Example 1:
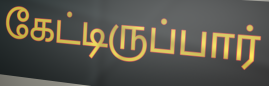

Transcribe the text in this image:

கேட்டிருப்பார்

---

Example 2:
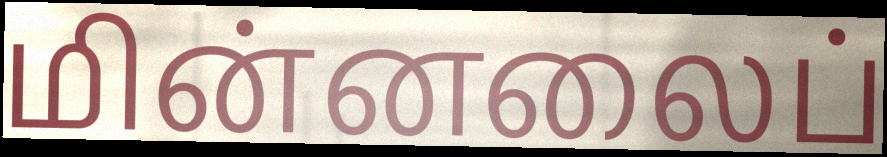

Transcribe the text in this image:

மின்னலைப்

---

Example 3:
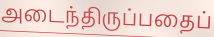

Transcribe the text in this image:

அடைந்திருப்பதைப்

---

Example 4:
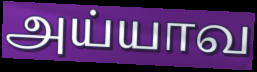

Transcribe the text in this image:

அய்யாவ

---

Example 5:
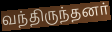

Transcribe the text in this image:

வந்திருந்தனர்